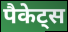
पैकेट्स